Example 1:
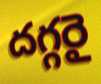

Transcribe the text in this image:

దగ్గరై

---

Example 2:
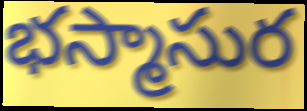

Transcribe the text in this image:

భస్మాసుర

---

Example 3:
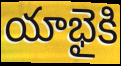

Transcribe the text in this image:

యాభైకి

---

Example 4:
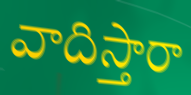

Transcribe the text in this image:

వాదిస్తారా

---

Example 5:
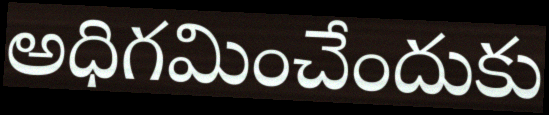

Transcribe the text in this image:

అధిగమించేందుకు